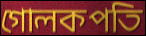
গোলকপতি